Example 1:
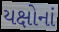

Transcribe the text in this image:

યક્ષોનાં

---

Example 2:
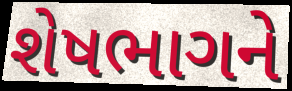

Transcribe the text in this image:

શેષભાગને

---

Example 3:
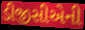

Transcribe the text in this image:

ડીજીસીએની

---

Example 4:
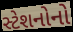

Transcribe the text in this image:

સ્ટેશનોનો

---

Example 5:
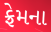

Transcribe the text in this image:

ફ્રેમના